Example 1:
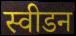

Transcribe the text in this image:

स्वीडन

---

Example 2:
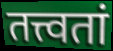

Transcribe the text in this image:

तत्त्वतां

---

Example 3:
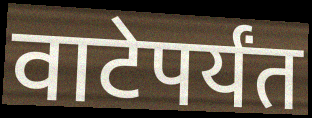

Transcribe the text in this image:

वाटेपर्यंत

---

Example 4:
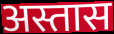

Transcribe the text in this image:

अस्तास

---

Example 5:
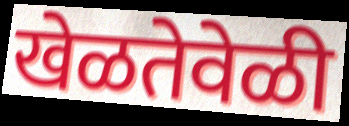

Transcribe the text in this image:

खेळतेवेळी